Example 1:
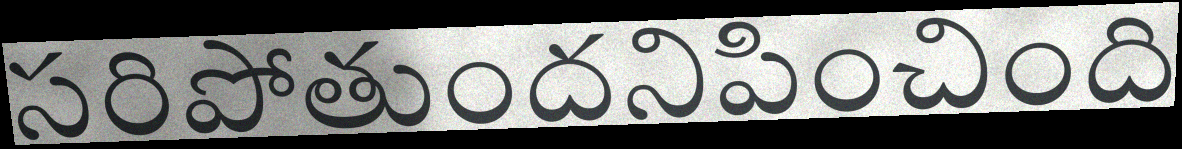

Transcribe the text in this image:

సరిపోతుందనిపించింది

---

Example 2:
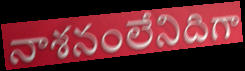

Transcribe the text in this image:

నాశనంలేనిదిగా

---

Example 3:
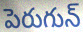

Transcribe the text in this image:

పెరుగున్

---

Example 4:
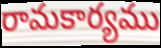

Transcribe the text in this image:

రామకార్యము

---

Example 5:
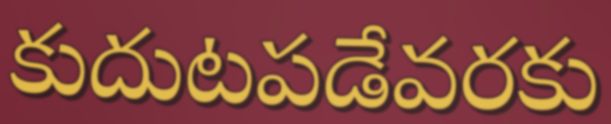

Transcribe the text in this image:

కుదుటపడేవరకు